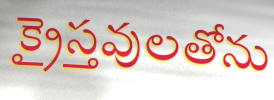
క్రైస్తవులతోను